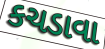
કચડાવા